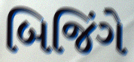
બિજિંગે